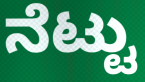
ನೆಟ್ಟು